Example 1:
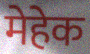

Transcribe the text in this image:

मेहेक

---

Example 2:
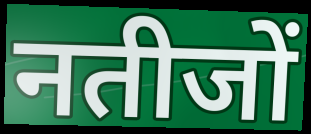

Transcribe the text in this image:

नतीजों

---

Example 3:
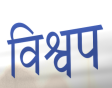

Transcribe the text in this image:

विश्वप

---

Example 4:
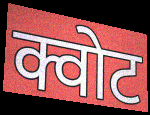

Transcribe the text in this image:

क्वोट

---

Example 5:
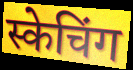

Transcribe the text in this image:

स्केचिंग